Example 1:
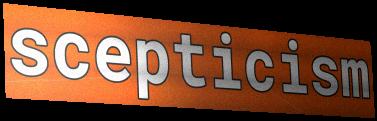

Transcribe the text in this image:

scepticism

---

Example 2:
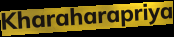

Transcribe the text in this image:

Kharaharapriya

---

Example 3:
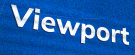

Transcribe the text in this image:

Viewport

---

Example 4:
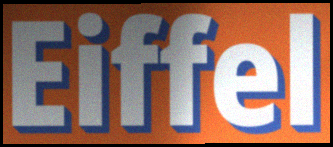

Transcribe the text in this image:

Eiffel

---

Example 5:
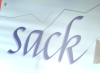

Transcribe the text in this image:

sack